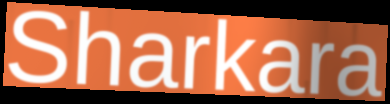
Sharkara